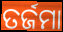
ତର୍ଜମା